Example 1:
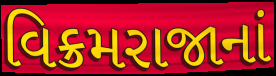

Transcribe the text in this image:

વિક્રમરાજાનાં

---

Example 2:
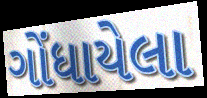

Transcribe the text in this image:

ગોંધાયેલા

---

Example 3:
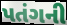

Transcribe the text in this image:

પતંગની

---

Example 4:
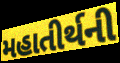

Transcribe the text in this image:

મહાતીર્થની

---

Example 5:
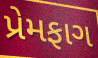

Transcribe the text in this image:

પ્રેમફાગ